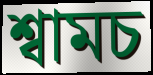
শ্বামচ